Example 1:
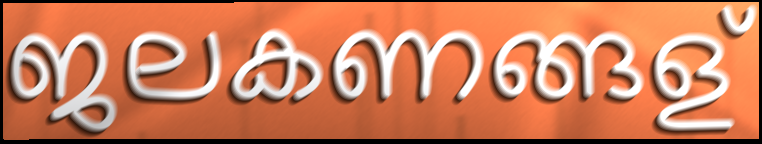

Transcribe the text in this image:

ജലകണങ്ങള്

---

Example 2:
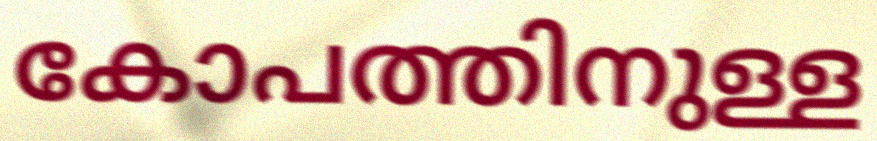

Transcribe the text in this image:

കോപത്തിനുള്ള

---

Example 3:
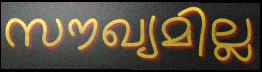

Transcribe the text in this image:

സൗഖ്യമില്ല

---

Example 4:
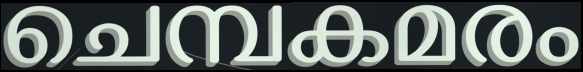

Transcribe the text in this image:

ചെമ്പകമരം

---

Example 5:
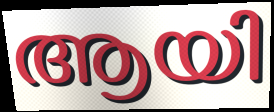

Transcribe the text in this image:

ആയി